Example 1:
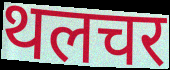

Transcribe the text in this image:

थलचर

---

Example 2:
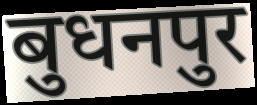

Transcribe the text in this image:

बुधनपुर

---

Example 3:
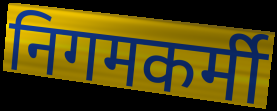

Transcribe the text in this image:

निगमकर्मी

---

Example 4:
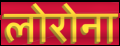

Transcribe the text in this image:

लोरोना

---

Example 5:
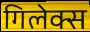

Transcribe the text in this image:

गिलेक्स